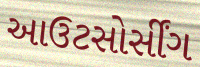
આઉટસોર્સીંગ